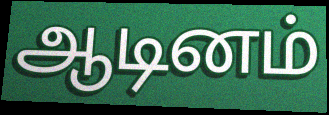
ஆடினம்